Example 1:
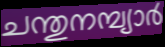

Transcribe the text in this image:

ചന്തുനമ്പ്യാർ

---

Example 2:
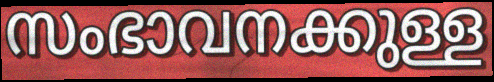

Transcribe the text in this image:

സംഭാവനക്കുള്ള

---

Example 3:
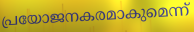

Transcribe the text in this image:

പ്രയോജനകരമാകുമെന്ന്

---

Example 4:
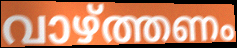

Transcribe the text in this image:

വാഴ്ത്തണം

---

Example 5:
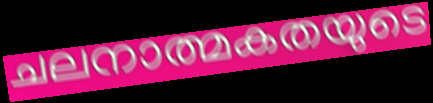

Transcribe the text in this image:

ചലനാത്മകതയുടെ